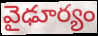
వైఢూర్యం